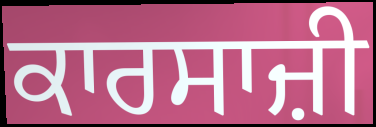
ਕਾਰਸਾਜ਼ੀ